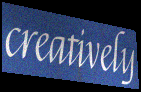
creatively